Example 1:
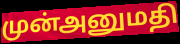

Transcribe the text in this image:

முன்அனுமதி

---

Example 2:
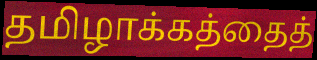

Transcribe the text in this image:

தமிழாக்கத்தைத்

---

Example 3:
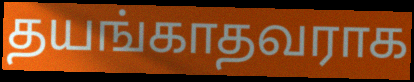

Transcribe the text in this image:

தயங்காதவராக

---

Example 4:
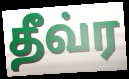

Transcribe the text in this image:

தீவ்ர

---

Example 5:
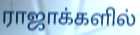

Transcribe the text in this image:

ராஜாக்களில்